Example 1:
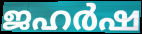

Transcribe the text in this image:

ജഹർഷ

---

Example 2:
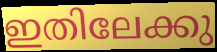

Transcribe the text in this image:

ഇതിലേക്കു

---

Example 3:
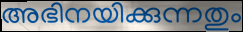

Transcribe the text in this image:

അഭിനയിക്കുന്നതും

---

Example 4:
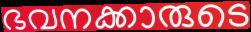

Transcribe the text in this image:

ഭവനക്കാരുടെ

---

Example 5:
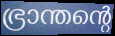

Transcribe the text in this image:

ഭ്രാന്തന്റെ